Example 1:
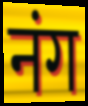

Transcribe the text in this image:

नंग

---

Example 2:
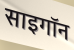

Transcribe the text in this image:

साइगॉन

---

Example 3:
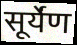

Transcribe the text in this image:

सूर्ये॑ण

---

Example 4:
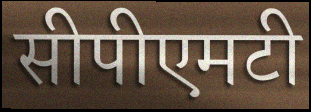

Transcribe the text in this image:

सीपीएमटी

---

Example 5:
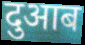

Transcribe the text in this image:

दुआब